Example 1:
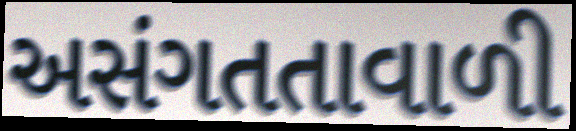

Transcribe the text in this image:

અસંગતતાવાળી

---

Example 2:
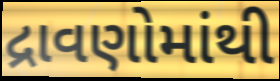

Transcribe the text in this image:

દ્રાવણોમાંથી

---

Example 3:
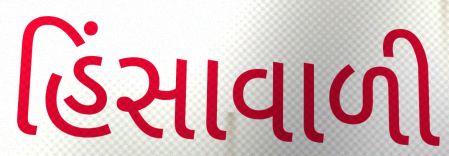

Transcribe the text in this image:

હિંસાવાળી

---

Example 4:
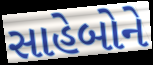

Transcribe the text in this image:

સાહેબોને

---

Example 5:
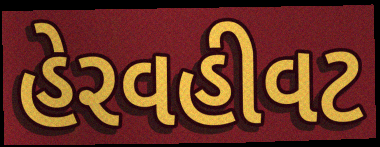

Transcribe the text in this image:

હેરવહીવટ